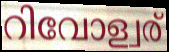
റിവോള്വര്